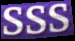
sss